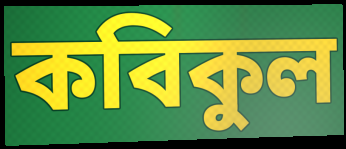
কবিকুল